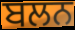
ਬਲਨ